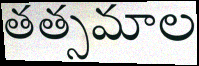
తత్సమాల